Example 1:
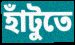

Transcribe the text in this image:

হাঁটুতে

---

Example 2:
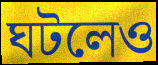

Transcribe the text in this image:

ঘটলেও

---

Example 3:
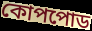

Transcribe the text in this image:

কোপপোড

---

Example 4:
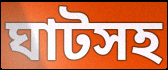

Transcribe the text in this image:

ঘাটসহ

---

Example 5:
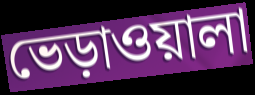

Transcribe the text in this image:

ভেড়াওয়ালা